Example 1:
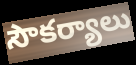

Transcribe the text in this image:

సౌకర్యాలు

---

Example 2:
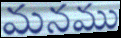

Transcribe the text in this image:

మనము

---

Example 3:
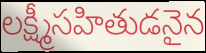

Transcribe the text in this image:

లక్ష్మీసహితుడనైన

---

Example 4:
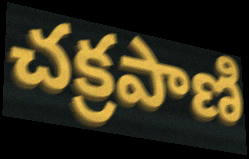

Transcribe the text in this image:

చక్రపాణి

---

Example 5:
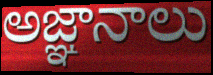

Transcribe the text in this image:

అజ్ఞానాలు